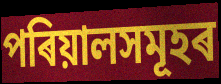
পৰিয়ালসমূহৰ